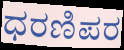
ಧರಣಿಪರ